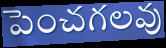
పెంచగలవు